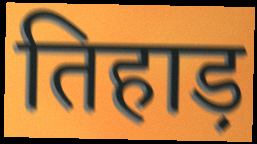
तिहाड़